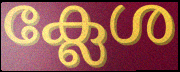
ക്ലേശ